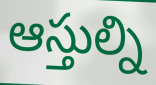
ఆస్తుల్ని